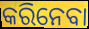
କରିନେବା